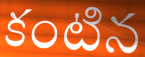
కంటిన